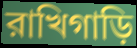
রাখিগাড়ি